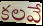
కలవే